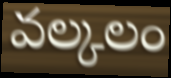
వల్కలం